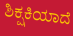
ಶಿಕ್ಷಕಿಯಾದೆ